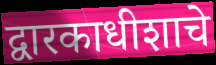
द्वारकाधीशाचे